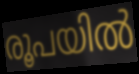
രൂപയിൽ